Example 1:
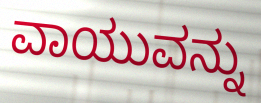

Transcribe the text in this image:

ವಾಯುವನ್ನು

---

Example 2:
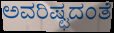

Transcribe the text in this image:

ಅವರಿಷ್ಟದಂತೆ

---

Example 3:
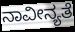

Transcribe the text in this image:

ನಾವೀನ್ಯತೆ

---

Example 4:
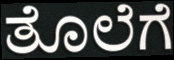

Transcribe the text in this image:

ತೊಲೆಗೆ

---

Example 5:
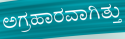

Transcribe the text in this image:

ಅಗ್ರಹಾರವಾಗಿತ್ತು